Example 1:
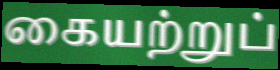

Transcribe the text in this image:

கையற்றுப்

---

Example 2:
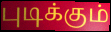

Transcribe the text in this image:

புடிக்கும்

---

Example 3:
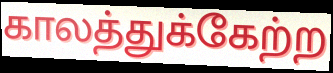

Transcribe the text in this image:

காலத்துக்கேற்ற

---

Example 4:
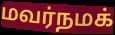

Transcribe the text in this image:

மவர்நமக்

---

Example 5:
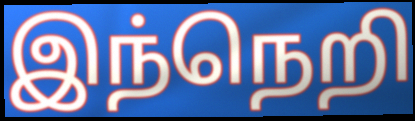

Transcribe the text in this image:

இந்நெறி